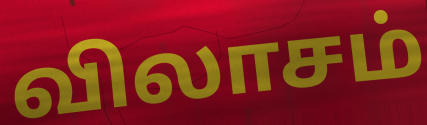
விலாசம்